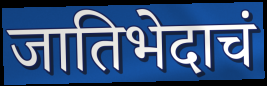
जातिभेदाचं